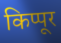
किप्पूर